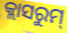
କ୍ଲାସରୁମ୍